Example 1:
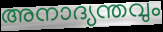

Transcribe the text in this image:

അനാദ്യന്തവും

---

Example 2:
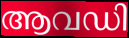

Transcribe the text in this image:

ആവഡി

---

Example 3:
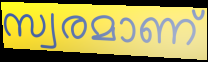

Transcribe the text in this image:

സ്വരമാണ്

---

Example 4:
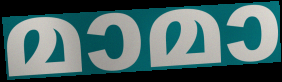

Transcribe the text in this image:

മാമാ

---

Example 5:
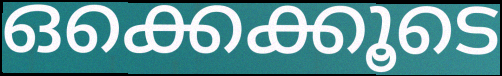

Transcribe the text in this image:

ഒക്കെക്കൂടെ